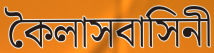
কৈলাসবাসিনী